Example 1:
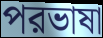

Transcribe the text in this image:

পরভাষা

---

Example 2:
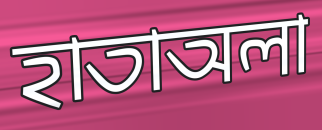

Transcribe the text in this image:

হাতাঅলা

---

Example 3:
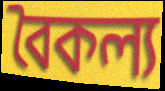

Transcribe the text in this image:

বৈকল্য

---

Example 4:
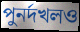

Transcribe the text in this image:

পুনর্দখলও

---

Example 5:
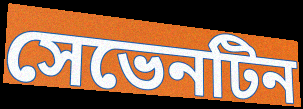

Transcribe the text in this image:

সেভেনটিন